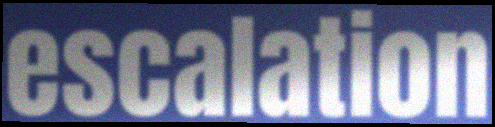
escalation